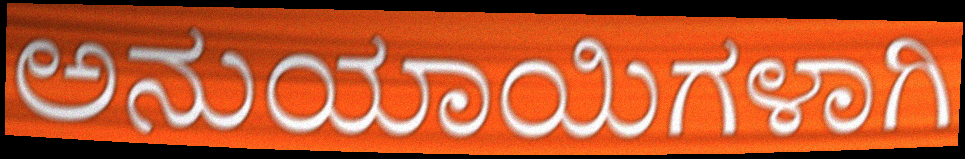
ಅನುಯಾಯಿಗಳಾಗಿ